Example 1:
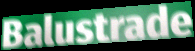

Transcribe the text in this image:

Balustrade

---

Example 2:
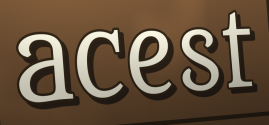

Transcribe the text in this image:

acest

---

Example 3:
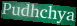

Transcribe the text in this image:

Pudhchya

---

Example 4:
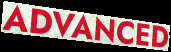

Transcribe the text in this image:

ADVANCED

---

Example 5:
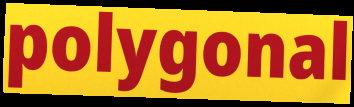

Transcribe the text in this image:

polygonal